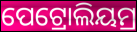
ପେଟ୍ରୋଲିୟମ୍ର